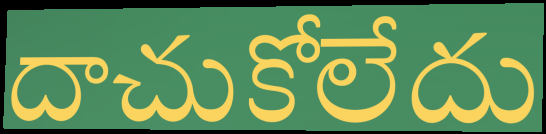
దాచుకోలేదు